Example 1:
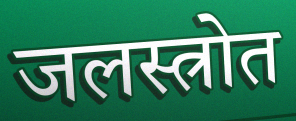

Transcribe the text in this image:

जलस्त्रोत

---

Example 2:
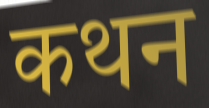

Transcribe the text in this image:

कथन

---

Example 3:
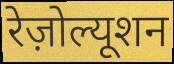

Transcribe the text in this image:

रेज़ोल्यूशन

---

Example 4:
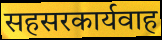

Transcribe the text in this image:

सहसरकार्यवाह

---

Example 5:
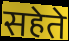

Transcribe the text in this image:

सहेते